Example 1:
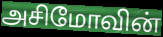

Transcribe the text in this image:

அசிமோவின்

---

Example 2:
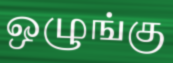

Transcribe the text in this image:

ஒழுங்கு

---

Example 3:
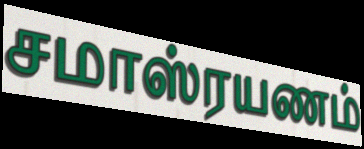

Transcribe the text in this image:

சமாஸ்ரயணம்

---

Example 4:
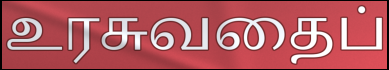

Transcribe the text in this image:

உரசுவதைப்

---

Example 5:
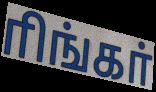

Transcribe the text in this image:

ரிங்கர்